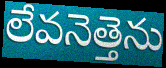
లేవనెత్తెను